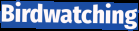
Birdwatching